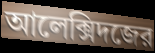
আলেক্সিদজের